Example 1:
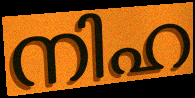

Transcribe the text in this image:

നിഹ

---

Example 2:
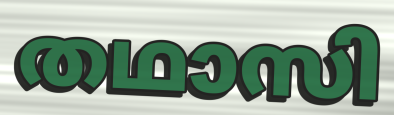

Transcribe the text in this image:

തഥാസി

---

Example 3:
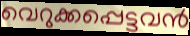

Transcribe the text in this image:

വെറുക്കപ്പെട്ടവൻ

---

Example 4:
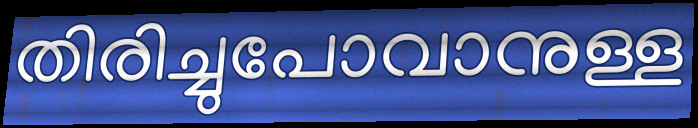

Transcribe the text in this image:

തിരിച്ചുപോവാനുള്ള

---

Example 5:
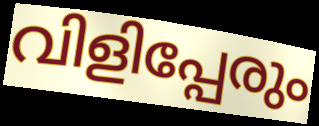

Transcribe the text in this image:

വിളിപ്പേരും